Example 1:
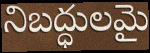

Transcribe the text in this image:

నిబద్ధులమై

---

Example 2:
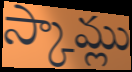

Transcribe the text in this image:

స్కామ్లు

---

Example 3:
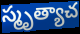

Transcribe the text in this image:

స్మృత్యాచ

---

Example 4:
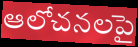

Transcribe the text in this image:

ఆలోచనలపై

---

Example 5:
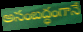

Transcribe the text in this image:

అసంబద్ధంగానే